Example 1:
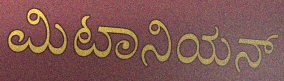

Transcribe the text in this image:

ಮಿಟಾನಿಯನ್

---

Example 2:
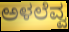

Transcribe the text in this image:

ಅಳಲೆವ್ವ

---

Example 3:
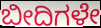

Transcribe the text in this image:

ಬೀದಿಗಳೇ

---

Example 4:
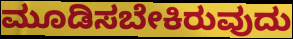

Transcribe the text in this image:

ಮೂಡಿಸಬೇಕಿರುವುದು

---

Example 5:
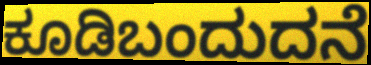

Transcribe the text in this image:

ಕೂಡಿಬಂದುದನೆ